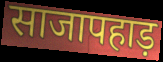
साजापहाड़